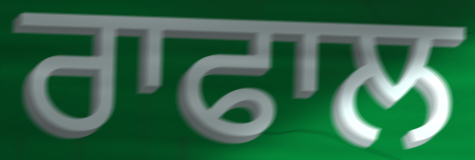
ਰਾਫਾਲ